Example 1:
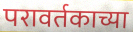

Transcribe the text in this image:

परावर्तकाच्या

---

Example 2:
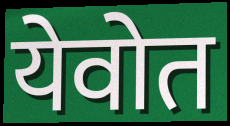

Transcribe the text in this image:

येवोत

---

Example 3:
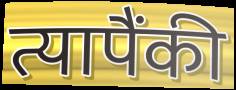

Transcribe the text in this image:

त्यापैंकी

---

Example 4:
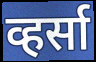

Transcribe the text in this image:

व्हर्सा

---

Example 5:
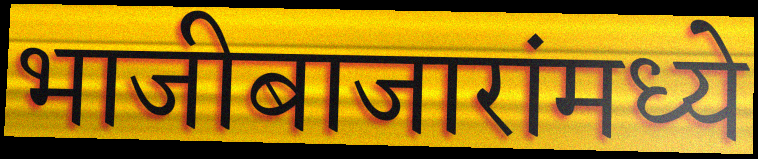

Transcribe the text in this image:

भाजीबाजारांमध्ये